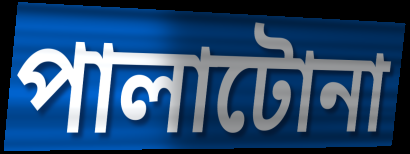
পালাটোনা